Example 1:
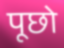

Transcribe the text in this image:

पूछो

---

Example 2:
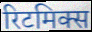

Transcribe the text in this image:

रिटमिक्स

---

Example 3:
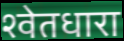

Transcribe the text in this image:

श्वेतधारा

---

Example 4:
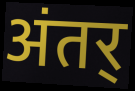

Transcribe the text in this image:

अंतर्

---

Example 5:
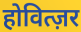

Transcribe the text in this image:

होवित्ज़र